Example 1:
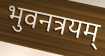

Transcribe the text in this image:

भुवनत्रयम्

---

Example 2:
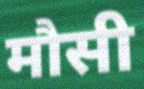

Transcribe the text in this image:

मौसी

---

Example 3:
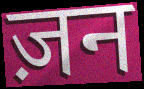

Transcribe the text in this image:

ज़न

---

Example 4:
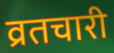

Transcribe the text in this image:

व्रतचारी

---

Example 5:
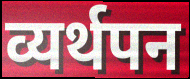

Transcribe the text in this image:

व्यर्थपन